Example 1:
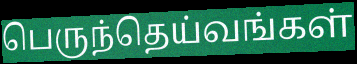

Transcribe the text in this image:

பெருந்தெய்வங்கள்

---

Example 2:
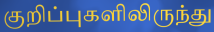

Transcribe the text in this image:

குறிப்புகளிலிருந்து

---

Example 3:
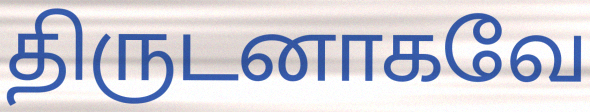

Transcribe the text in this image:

திருடனாகவே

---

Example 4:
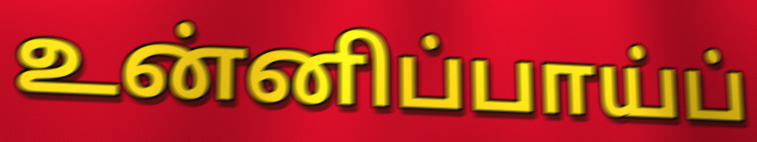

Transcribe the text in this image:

உன்னிப்பாய்ப்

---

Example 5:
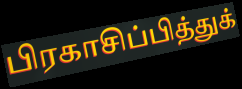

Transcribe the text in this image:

பிரகாசிப்பித்துக்